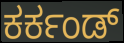
ಕರ್ಕಂಡ್